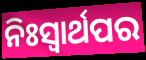
ନିଃସ୍ୱାର୍ଥପର